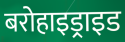
बरोहाइड्राइड